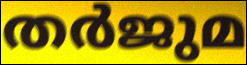
തർജുമ